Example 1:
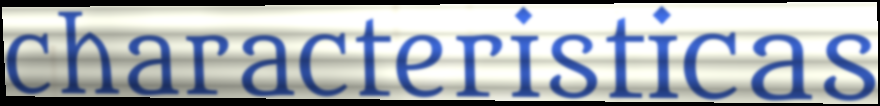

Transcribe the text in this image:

characteristicas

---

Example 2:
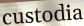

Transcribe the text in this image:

custodia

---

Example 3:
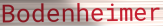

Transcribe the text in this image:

Bodenheimer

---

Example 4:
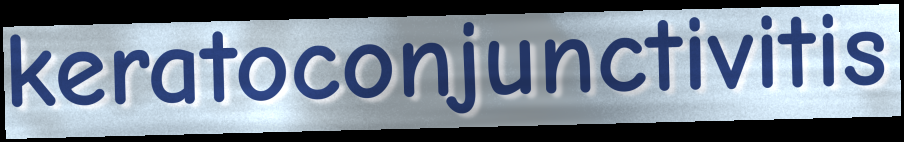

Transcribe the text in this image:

keratoconjunctivitis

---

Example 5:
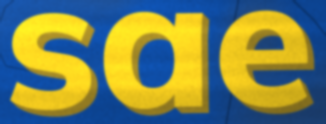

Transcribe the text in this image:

sae